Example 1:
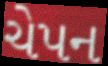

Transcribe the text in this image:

ચેપન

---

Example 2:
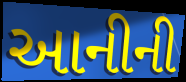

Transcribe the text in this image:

આનીની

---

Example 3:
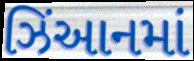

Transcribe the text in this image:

ઝિંઆનમાં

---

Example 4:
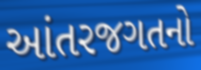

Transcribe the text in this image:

આંતરજગતનો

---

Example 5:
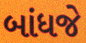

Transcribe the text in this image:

બાંધજે